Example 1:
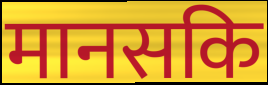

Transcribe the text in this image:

मानसकि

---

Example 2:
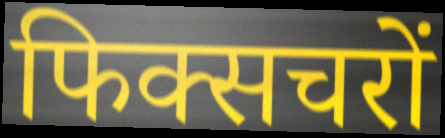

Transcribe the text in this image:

फिक्सचरों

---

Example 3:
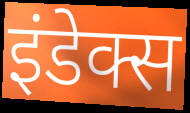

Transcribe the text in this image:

इंडेक्स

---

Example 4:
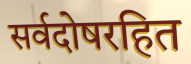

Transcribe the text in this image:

सर्वदोषरहित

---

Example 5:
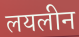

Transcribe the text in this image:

लयलीन